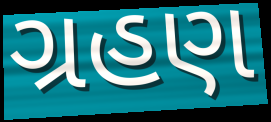
ગ્રહણ